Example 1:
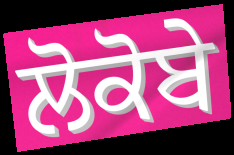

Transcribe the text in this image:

ਲੋਕੋਬੇ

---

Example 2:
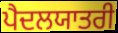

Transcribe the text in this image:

ਪੈਦਲਯਾਤਰੀ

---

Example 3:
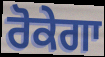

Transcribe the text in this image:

ਰੋਕੇਗਾ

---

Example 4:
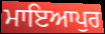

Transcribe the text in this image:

ਮਾਇਆਪੁਰ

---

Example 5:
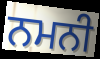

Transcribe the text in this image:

ਨਮਨੀ